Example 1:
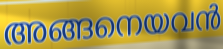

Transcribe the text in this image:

അങ്ങനെയവൻ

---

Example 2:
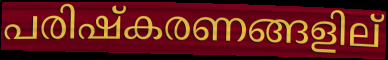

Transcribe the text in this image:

പരിഷ്കരണങ്ങളില്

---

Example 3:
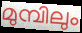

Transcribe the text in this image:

മുമ്പിലും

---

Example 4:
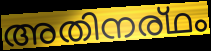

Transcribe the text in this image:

അതിനര്ഥം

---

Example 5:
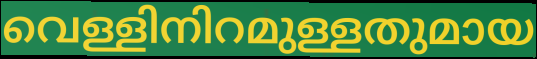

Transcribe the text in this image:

വെള്ളിനിറമുള്ളതുമായ